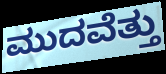
ಮುದವೆತ್ತು